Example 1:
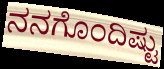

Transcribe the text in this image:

ನನಗೊಂದಿಷ್ಟು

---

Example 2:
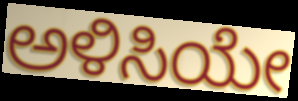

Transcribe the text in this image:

ಅಳಿಸಿಯೇ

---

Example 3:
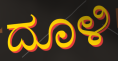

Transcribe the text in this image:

ದೂಳಿ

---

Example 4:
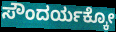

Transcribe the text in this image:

ಸೌಂದರ್ಯಕ್ಕೋ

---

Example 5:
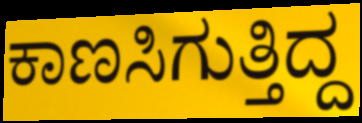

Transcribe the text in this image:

ಕಾಣಸಿಗುತ್ತಿದ್ದ